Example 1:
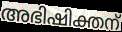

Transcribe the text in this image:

അഭിഷിക്തന്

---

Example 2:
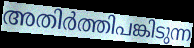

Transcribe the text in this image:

അതിർത്തിപങ്കിടുന്ന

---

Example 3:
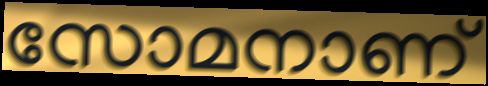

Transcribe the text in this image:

സോമനാണ്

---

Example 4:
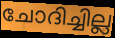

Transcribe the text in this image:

ചോദിച്ചില്ല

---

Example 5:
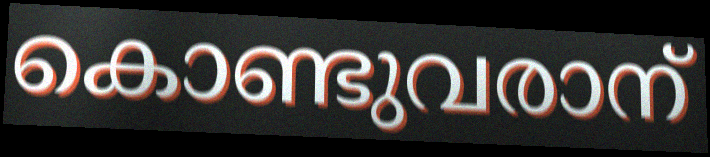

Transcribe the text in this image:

കൊണ്ടുവരാന്